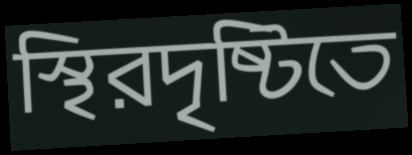
স্থিরদৃষ্টিতে